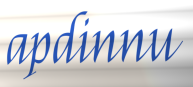
apdinnu